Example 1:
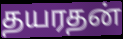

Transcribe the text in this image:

தயரதன்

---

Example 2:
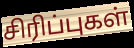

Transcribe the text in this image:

சிரிப்புகள்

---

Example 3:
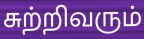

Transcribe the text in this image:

சுற்றிவரும்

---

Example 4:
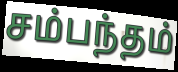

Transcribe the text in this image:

சம்பந்தம்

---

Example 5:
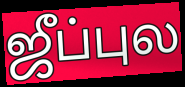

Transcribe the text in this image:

ஜீப்புல